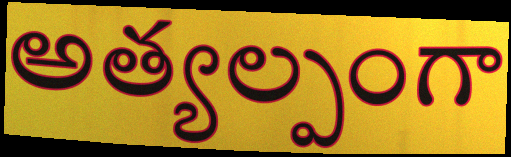
అత్యల్పంగా